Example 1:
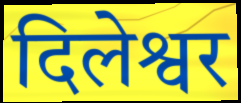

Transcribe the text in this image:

दिलेश्वर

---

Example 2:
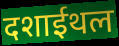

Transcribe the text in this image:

दशाईथल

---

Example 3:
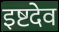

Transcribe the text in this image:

इष्टदेव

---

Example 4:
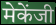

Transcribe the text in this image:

मेकेंजी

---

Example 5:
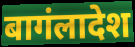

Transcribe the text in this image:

बागंलादेश